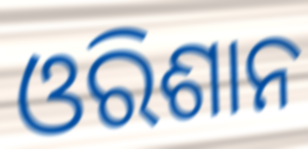
ଓରିଶାନ